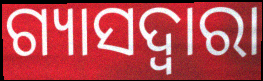
ଗ୍ୟାସଦ୍ଵାରା